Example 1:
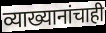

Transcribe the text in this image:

व्याख्यानांचाही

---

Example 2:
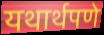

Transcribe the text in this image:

यथार्थपणे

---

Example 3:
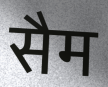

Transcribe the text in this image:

सैम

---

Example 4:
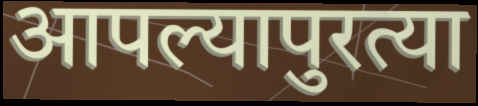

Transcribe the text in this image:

आपल्यापुरत्या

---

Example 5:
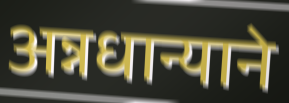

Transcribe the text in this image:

अन्नधान्याने